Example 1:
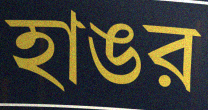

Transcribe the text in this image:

হাঙর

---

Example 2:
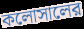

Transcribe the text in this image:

কলোসালের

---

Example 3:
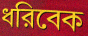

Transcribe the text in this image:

ধরিবেক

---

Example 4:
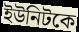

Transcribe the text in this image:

ইউনিটকে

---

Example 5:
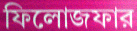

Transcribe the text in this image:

ফিলোজফার